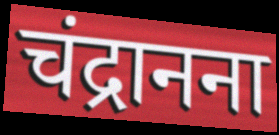
चंद्रानना